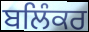
ਬਲਿੰਕਰ